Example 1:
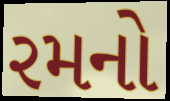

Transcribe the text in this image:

રમનો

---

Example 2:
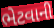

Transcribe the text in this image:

ભેટવાની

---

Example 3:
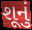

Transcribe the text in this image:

શૂનું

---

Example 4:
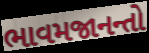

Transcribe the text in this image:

ભાવમજાનન્તો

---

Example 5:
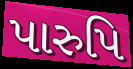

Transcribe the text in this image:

પારુપિ